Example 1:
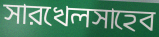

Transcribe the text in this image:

সারখেলসাহেব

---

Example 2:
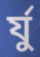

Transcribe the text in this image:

র্যু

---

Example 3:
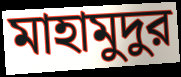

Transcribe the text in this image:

মাহামুদুর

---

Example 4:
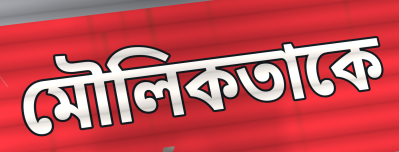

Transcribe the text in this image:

মৌলিকতাকে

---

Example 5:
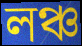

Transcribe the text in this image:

লঞ্চ